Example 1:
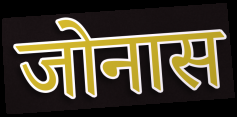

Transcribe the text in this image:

जोनास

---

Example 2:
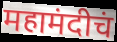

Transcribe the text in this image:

महामंदीचं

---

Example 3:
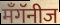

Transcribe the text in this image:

मँगॅनीज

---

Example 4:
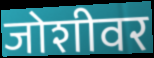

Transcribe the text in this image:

जोशीवर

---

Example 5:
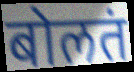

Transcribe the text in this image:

बोलतं